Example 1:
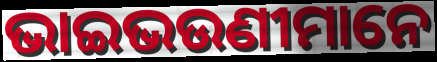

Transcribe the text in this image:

ଭାଇଭଉଣୀମାନେ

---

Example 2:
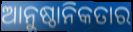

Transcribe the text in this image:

ଆନୁଷ୍ଠାନିକତାର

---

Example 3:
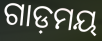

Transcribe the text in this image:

ଗାଡ଼ମୟ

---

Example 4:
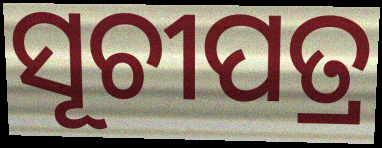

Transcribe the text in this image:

ସୂଚୀପତ୍ର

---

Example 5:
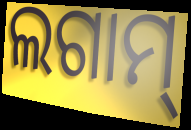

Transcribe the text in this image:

ଲଗାମ୍